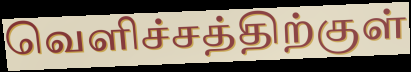
வெளிச்சத்திற்குள்